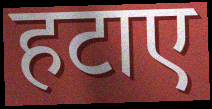
हटाए